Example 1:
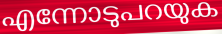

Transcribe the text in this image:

എന്നോടുപറയുക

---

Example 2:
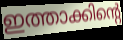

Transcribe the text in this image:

ഇത്താക്കിന്റെ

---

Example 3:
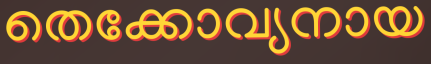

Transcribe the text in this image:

തെക്കോവ്യനായ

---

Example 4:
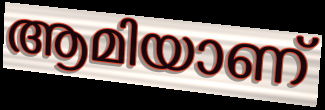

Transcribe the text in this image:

ആമിയാണ്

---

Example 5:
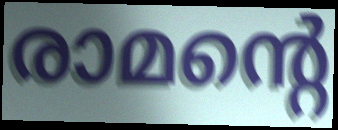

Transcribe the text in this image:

രാമന്റെ